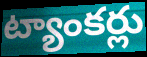
ట్యాంకర్లు